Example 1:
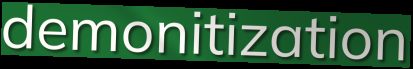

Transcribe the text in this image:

demonitization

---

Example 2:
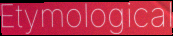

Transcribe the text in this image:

Etymological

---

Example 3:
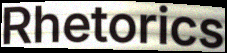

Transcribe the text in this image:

Rhetorics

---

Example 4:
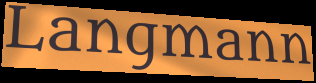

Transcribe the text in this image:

Langmann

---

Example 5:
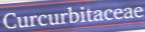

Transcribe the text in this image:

Curcurbitaceae